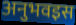
अनुभवइस